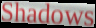
Shadows